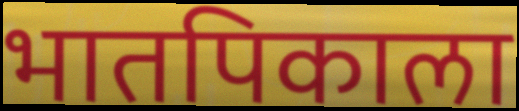
भातपिकाला